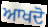
ਆਖਦੋ